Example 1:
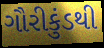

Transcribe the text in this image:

ગૌરીકુંડથી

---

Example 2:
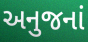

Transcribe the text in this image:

અનુજનાં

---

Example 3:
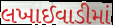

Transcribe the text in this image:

લખાઈવાડીમાં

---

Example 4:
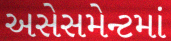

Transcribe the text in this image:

અસેસમેન્ટમાં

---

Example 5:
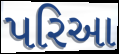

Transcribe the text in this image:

પરિઆ